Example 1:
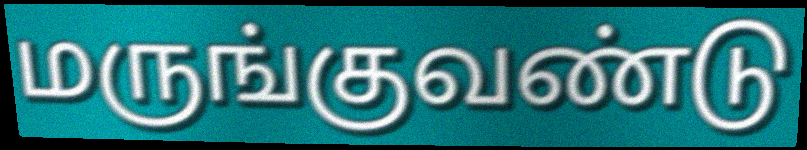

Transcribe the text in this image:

மருங்குவண்டு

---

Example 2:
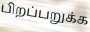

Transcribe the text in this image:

பிறப்பறுக்க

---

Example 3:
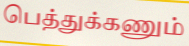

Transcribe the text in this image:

பெத்துக்கணும்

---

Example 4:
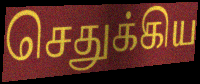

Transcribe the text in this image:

செதுக்கிய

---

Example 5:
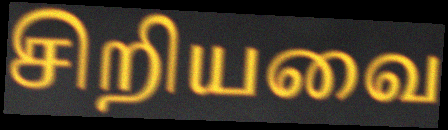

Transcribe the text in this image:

சிறியவை